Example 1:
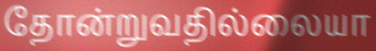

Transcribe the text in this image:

தோன்றுவதில்லையா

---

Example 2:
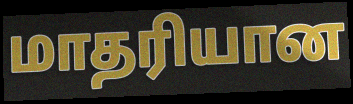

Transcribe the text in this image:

மாதரியான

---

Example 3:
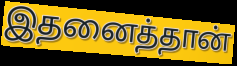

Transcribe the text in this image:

இதனைத்தான்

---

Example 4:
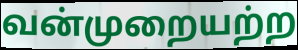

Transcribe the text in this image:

வன்முறையற்ற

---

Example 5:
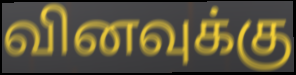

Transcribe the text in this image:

வினவுக்கு